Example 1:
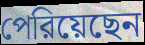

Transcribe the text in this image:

পেরিয়েছেন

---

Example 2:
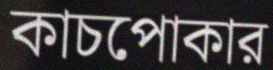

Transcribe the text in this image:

কাচপোকার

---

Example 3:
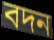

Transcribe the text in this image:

বদন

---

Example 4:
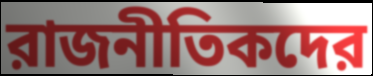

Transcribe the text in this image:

রাজনীতিকদের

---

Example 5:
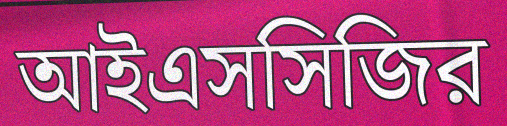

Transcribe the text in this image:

আইএসসিজির